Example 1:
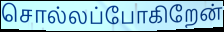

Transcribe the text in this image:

சொல்லப்போகிறேன்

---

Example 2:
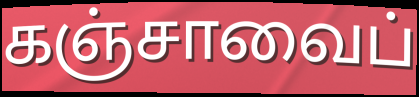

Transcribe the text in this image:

கஞ்சாவைப்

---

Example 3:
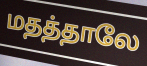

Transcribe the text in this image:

மதத்தாலே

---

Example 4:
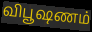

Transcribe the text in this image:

விபூஷணம்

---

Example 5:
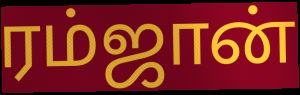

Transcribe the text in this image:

ரம்ஜான்